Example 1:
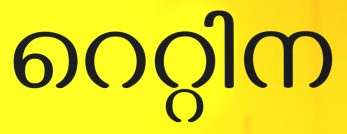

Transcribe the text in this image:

റെറ്റിന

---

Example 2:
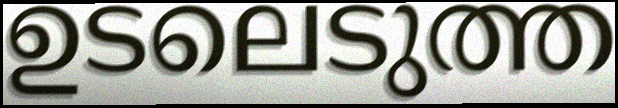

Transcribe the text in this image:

ഉടലെടുത്ത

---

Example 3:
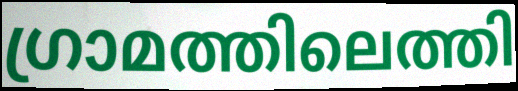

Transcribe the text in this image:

ഗ്രാമത്തിലെത്തി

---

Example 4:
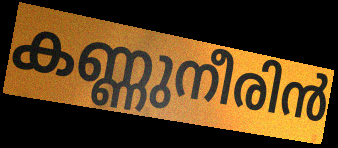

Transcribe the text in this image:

കണ്ണുനീരിൻ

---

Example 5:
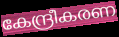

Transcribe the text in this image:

കേന്ദ്രീകരണ